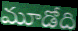
మూడోది